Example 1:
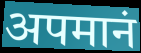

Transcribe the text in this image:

अपमानं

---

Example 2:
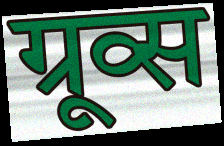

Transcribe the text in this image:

ग्रूव्स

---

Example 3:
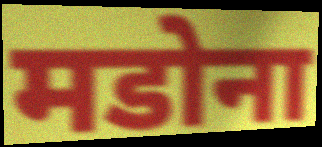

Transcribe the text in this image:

मडोना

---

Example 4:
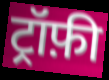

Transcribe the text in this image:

ट्रॉफ़ी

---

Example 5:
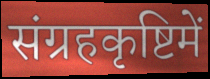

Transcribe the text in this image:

संग्रहकृष्टिमें